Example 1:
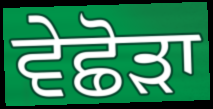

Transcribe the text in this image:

ਵੇਛੋੜਾ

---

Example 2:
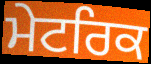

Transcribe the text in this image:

ਮੇਟਰਿਕ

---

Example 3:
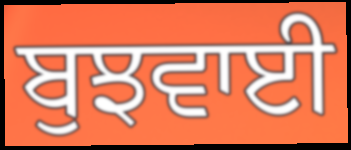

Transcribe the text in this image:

ਬੁਝਵਾਈ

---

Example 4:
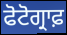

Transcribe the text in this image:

ਫੋਟੋਗ੍ਰਾਫ਼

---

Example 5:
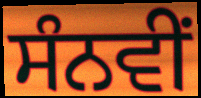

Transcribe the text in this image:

ਸੰਨਵੀਂ